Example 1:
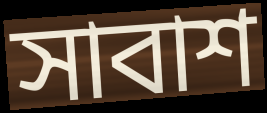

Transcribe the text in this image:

সাবাশ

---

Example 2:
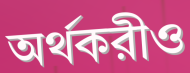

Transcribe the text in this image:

অর্থকরীও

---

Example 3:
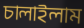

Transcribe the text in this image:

চালাইলাম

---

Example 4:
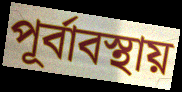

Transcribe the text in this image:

পূর্বাবস্থায়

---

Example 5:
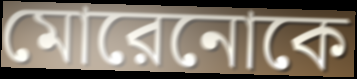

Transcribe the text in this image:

মোরেনোকে